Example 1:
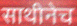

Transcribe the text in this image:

साथीनेच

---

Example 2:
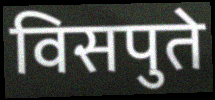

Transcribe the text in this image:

विसपुते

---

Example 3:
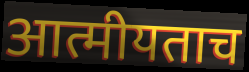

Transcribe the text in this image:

आत्मीयताच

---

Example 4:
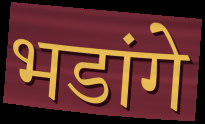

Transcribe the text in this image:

भडांगे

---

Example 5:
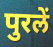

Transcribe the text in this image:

पुरलें